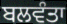
ਬਲਵੰਤਾ